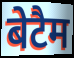
बेटैम